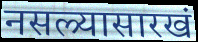
नसल्यासारखं